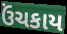
ઉંચકાય